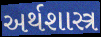
અર્થશાસ્ત્ર